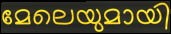
മേലെയുമായി